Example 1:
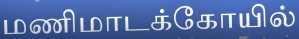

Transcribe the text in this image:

மணிமாடக்கோயில்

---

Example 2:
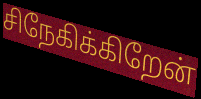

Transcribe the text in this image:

சிநேகிக்கிறேன்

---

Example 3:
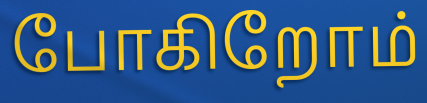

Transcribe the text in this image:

போகிறோம்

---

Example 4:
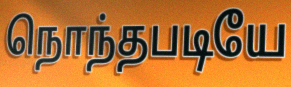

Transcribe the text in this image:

நொந்தபடியே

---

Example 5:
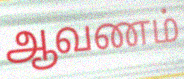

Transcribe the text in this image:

ஆவணம்